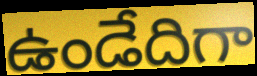
ఉండేదిగా